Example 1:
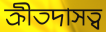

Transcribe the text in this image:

ক্রীতদাসত্ব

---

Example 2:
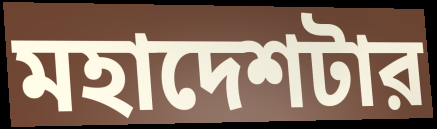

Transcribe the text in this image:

মহাদেশটার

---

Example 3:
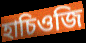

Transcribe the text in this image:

হাচিওজি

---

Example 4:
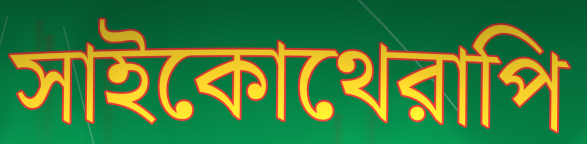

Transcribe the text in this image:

সাইকোথেরাপি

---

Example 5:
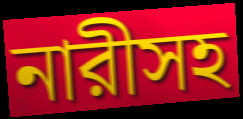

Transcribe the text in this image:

নারীসহ